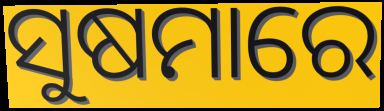
ସୁଷମାରେ